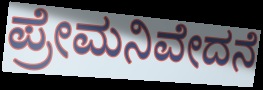
ಪ್ರೇಮನಿವೇದನೆ